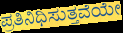
ಪ್ರತಿನಿಧಿಸುತ್ತವೆಯೇ